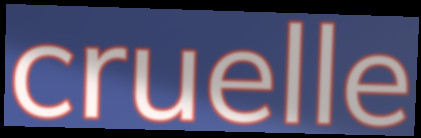
cruelle